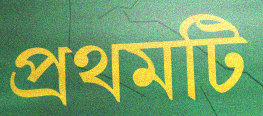
প্রথমটি